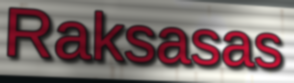
Raksasas